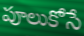
పూలుకోసే